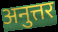
अनुत्तर